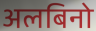
अलबिनो